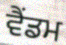
ਵੈਂਡਮ